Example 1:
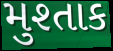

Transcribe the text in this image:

મુશ્તાક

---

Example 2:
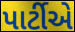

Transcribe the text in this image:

પાર્ટીએ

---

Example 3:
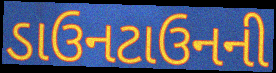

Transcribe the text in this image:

ડાઉનટાઉનની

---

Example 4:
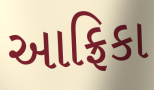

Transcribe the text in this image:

આફ્રિકા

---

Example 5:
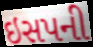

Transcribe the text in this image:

ઇસપની